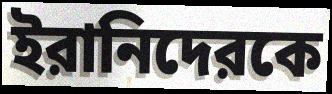
ইরানিদেরকে